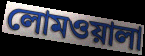
লোমওয়ালা